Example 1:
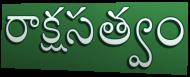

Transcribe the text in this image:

రాక్షసత్వం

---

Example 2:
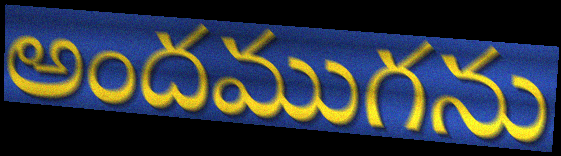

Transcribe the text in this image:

అందముగను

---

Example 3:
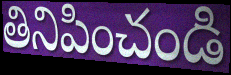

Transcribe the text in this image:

తినిపించండి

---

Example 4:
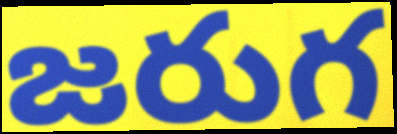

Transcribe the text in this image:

జరుగ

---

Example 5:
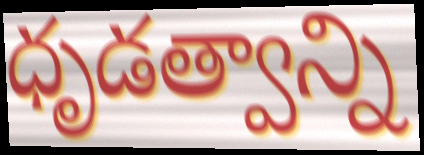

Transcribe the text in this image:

ధృడత్వాన్ని